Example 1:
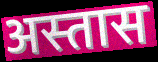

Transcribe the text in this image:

अस्तास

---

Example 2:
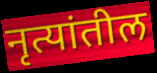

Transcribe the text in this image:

नृत्यांतील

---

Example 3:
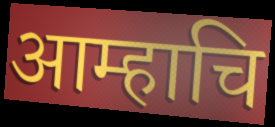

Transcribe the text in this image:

आम्हाचि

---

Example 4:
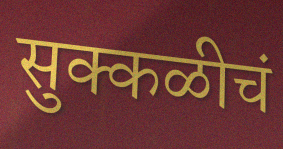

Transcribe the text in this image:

सुक्कळीचं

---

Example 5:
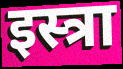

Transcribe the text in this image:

इस्त्रा